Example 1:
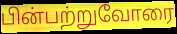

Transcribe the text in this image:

பின்பற்றுவோரை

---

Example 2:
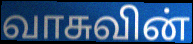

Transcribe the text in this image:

வாசுவின்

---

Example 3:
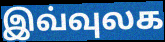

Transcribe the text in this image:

இவ்வுலக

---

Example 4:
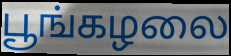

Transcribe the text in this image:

பூங்கழலை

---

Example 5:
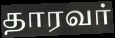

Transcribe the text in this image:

தாரவர்